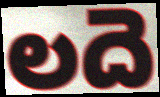
లదె